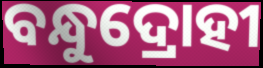
ବନ୍ଧୁଦ୍ରୋହୀ